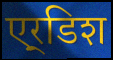
एर्डिश